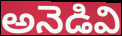
అనెడివి